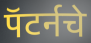
पॅटर्नचे